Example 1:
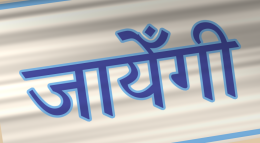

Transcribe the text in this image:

जायेँगी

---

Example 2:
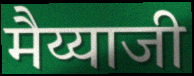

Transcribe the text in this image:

मैय्याजी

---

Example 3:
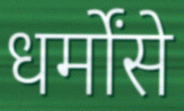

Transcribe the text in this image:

धर्मोंसे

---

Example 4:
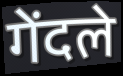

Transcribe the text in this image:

गेंदले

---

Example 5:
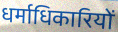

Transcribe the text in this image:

धर्माधिकारियों